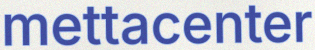
mettacenter